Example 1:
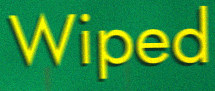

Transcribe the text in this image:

Wiped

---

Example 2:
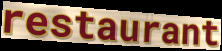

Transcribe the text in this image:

restaurant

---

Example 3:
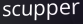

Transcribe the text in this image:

scupper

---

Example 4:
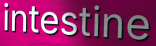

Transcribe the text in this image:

intestine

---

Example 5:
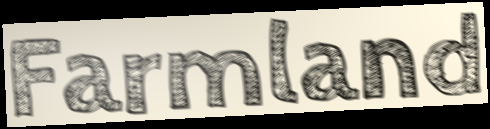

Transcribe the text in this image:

Farmland